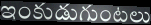
ఇంకుడుగుంటలు